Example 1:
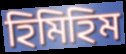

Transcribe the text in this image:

হিমিহিম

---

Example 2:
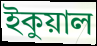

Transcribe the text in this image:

ইকুয়াল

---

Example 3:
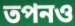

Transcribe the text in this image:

তপনও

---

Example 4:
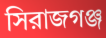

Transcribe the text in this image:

সিরাজগঞ্জ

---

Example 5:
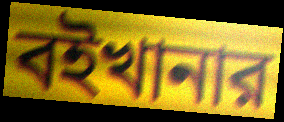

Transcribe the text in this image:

বইখানার